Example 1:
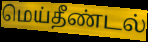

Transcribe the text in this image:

மெய்தீண்டல்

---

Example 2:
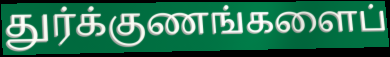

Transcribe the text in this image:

துர்க்குணங்களைப்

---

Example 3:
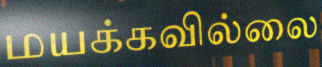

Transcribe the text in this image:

மயக்கவில்லை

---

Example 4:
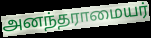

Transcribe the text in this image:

அனந்தராமையர்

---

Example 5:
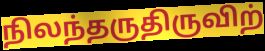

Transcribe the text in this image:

நிலந்தருதிருவிற்